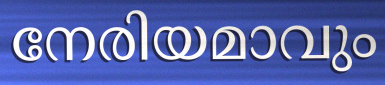
നേരിയമാവും